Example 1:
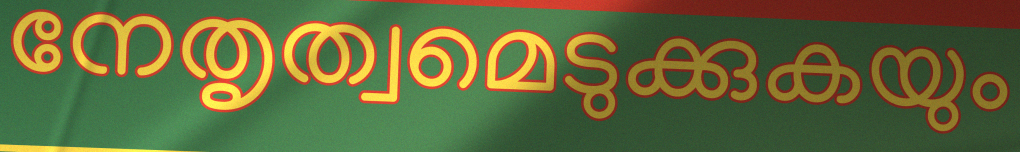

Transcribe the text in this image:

നേതൃത്വമെടുക്കുകയും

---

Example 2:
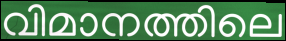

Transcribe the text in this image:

വിമാനത്തിലെ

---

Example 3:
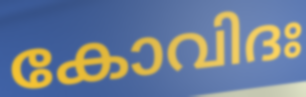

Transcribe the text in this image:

കോവിദഃ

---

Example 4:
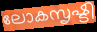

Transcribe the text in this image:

ലോകസൃഷ്ടി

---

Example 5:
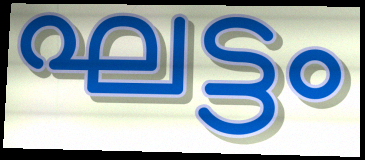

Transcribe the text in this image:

ഘട്ടം